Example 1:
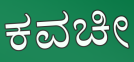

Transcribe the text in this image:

ಕವಚೀ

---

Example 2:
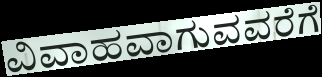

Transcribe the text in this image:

ವಿವಾಹವಾಗುವವರೆಗೆ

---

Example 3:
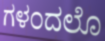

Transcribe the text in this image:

ಗಳಂದಲೊ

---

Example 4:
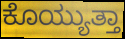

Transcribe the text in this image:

ಕೊಯ್ಯುತ್ತಾ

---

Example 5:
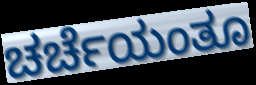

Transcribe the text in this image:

ಚರ್ಚೆಯಂತೂ